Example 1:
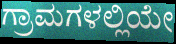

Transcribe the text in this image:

ಗ್ರಾಮಗಳಲ್ಲಿಯೇ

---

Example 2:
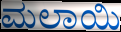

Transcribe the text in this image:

ಮಲಾಯಿ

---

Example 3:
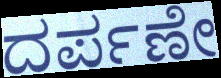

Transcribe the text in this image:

ದರ್ಪಣೇ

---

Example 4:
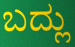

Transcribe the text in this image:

ಬದ್ಲು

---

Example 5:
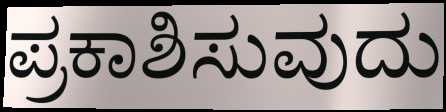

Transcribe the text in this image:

ಪ್ರಕಾಶಿಸುವುದು